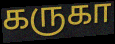
கருகா